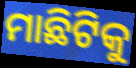
ମାଛିଟିକୁ